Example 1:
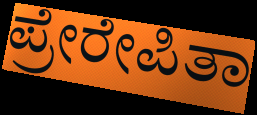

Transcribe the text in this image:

ಪ್ರೇರೇಪಿತಾ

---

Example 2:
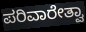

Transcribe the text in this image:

ಪರಿವಾರೇತ್ವಾ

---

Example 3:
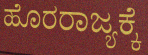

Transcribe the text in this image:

ಹೊರರಾಜ್ಯಕ್ಕೆ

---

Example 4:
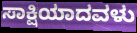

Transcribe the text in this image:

ಸಾಕ್ಷಿಯಾದವಳು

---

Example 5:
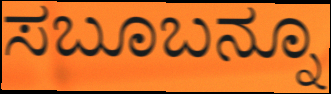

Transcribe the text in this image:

ಸಬೂಬನ್ನೂ